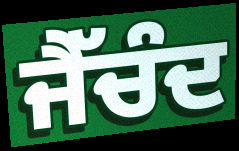
ਜੈੱਚੰਦ